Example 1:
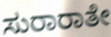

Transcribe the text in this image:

ಸುರಾರಾತೇ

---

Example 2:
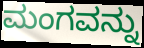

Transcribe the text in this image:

ಮಂಗವನ್ನು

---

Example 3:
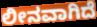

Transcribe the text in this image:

ಲೀನವಾಗಿದೆ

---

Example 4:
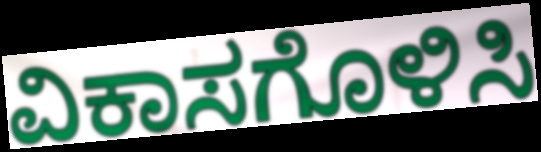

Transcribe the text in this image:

ವಿಕಾಸಗೊಳಿಸಿ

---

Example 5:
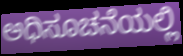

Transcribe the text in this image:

ಅಧಿಸೂಚನೆಯಲ್ಲಿ